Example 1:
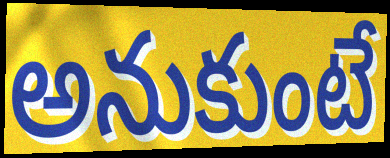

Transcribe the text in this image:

అనుకుంటే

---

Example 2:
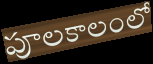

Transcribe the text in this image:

పూలకాలంలో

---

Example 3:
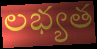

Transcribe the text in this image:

లభ్యత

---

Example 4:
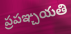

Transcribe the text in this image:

ప్రపఞ్చయతి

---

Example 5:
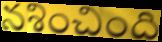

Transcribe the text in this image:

నశించింది